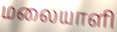
மலையாளி